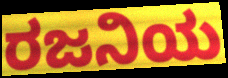
ರಜನಿಯ